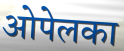
ओपेलका